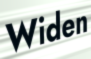
Widen